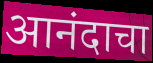
आनंदाचा